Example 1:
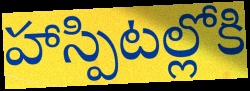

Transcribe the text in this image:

హాస్పిటల్లోకి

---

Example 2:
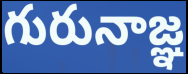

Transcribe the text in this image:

గురునాజ్ఞ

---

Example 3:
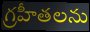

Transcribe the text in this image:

గ్రహీతలను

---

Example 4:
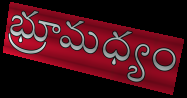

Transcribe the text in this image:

భ్రూమధ్యం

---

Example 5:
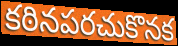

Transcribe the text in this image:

కఠినపరచుకొనక